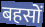
बहसों